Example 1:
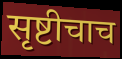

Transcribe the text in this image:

सृष्टीचाच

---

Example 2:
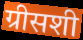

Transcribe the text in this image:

ग्रीसशी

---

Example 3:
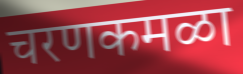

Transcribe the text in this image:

चरणकमळा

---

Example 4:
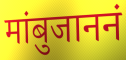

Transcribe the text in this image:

मांबुजाननं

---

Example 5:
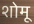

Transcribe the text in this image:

शोमू